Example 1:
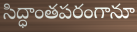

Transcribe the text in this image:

సిద్ధాంతపరంగానూ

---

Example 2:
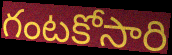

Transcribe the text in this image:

గంటకోసారి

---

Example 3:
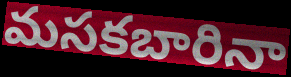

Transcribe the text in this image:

మసకబారినా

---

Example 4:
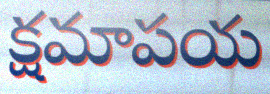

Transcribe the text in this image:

క్షమాపయ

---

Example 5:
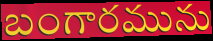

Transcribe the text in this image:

బంగారమును